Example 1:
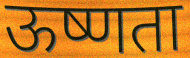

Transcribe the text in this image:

ऊष्णता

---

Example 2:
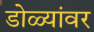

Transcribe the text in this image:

डोळ्यांवर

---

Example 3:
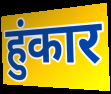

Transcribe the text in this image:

हुंकार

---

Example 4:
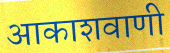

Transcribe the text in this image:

आकाशवाणी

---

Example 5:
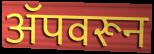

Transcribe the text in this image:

ॲपवरून